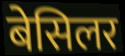
बेसिलर